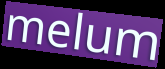
melum